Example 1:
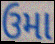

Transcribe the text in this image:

ઉમા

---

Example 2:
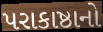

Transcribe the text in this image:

પરાકાષ્ઠાનો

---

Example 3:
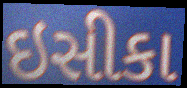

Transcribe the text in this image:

ઇસીકા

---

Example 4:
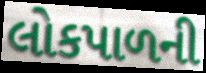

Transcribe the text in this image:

લોકપાળની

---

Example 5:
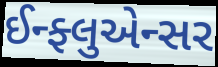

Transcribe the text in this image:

ઈન્ફ્લુએન્સર